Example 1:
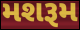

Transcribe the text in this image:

મશરૂમ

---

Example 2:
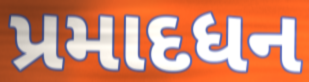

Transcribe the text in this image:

પ્રમાદધન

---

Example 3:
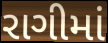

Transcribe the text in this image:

રાગીમાં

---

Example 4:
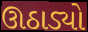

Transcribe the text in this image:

ઊઠાડ્યો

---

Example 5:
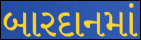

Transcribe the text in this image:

બારદાનમાં